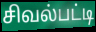
சிவல்பட்டி